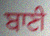
ਬਾਣੀ